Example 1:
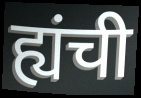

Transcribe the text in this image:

ह्यंची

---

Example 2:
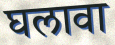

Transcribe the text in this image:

घलावा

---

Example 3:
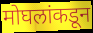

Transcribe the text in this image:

मोघलांकडून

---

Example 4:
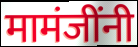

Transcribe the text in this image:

मामंजींनी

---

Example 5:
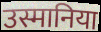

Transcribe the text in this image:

उस्मानिया